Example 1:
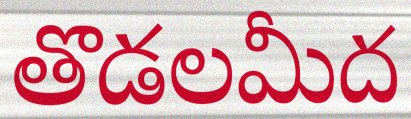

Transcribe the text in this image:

తొడలమీద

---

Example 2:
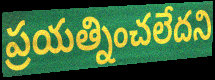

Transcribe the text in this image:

ప్రయత్నించలేదని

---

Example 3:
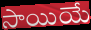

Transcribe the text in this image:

సాయియే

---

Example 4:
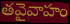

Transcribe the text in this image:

తవైవాహం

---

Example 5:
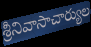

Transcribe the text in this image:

శ్రీనివాసాచార్యుల